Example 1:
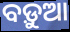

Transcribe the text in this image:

ବଡ଼ୁଆ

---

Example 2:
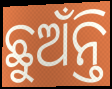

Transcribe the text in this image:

ଛୁଅଁନ୍ତି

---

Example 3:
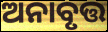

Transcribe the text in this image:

ଅନାବୃତ୍ତ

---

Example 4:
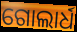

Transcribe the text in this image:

ଗୋଲାର୍ଧ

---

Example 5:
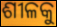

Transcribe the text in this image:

ଶୀଳକୁ